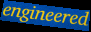
engineered